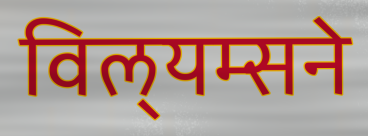
विल्यम्सने